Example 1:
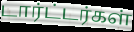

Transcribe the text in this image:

டார்ட்டர்கள்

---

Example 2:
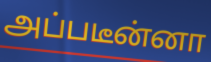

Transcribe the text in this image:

அப்படீன்னா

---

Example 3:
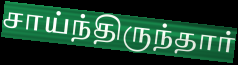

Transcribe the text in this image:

சாய்ந்திருந்தார்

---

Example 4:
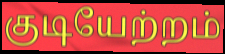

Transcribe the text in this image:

குடியேற்றம்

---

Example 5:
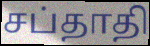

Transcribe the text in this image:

சப்தாதி